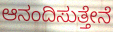
ಆನಂದಿಸುತ್ತೇನೆ